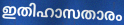
ഇതിഹാസതാരം